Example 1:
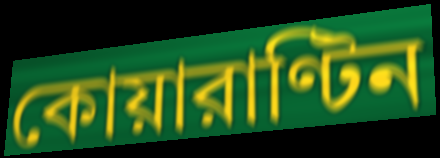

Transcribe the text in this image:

কোয়ারাণ্টিন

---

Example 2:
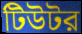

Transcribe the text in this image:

টিউটর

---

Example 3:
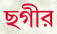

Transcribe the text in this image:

ছগীর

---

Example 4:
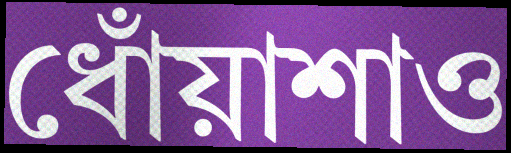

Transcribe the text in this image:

ধোঁয়াশাও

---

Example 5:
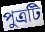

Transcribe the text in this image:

পুত্রটি